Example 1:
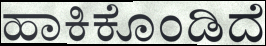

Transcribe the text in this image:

ಹಾಕಿಕೊಂಡಿದೆ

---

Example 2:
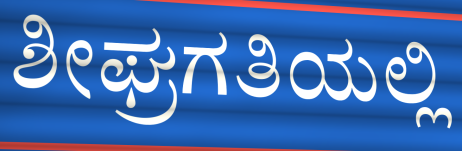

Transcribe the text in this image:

ಶೀಘ್ರಗತಿಯಲ್ಲಿ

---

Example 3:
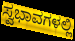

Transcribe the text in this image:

ಸ್ವಭಾವಗಳಲ್ಲಿ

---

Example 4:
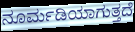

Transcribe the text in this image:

ನೂರ್ಮಡಿಯಾಗುತ್ತದೆ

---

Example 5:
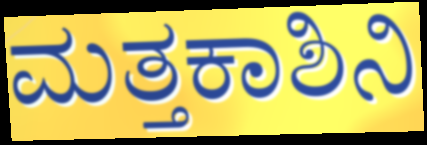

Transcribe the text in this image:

ಮತ್ತಕಾಶಿನಿ